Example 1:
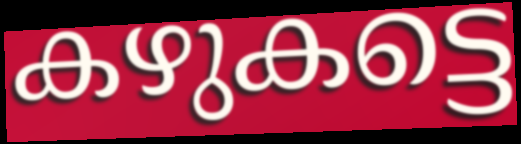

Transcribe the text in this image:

കഴുകട്ടെ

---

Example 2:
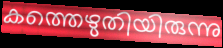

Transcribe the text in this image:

കത്തെഴുതിയിരുന്നു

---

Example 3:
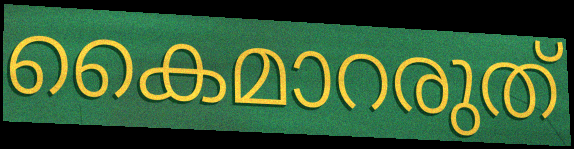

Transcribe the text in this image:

കൈമാറരുത്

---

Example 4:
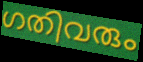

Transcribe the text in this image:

ഗതിവരും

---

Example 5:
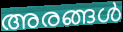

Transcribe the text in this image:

അരങ്ങൾ